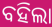
ବହିଲା